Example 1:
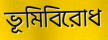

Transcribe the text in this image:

ভূমিবিরোধ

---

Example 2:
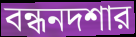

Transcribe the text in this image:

বন্ধনদশার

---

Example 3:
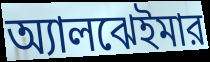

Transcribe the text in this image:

অ্যালঝেইমার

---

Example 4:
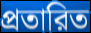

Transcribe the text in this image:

প্রতারিত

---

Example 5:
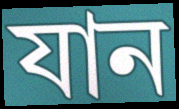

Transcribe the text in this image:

যান